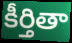
కీర్తితా